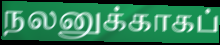
நலனுக்காகப்